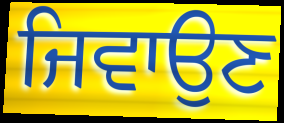
ਜਿਵਾਉਣ